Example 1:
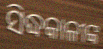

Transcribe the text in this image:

ସିଦ୍ଧକାଳୀଙ୍କ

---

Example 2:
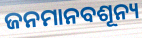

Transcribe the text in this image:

ଜନମାନବଶୂନ୍ୟ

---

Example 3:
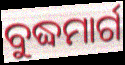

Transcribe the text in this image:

ବୁଦ୍ଧମାର୍ଗ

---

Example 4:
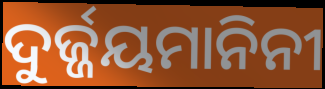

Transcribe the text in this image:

ଦୁର୍ଜ୍ଜୟମାନିନୀ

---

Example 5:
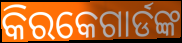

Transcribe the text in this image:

କିରକେଗାର୍ଡଙ୍କ